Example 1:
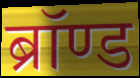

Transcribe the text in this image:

ब्रॉण्ड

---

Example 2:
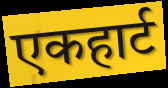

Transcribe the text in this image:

एकहार्ट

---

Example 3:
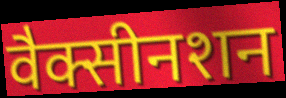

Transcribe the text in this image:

वैक्सीनशन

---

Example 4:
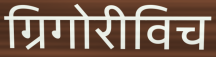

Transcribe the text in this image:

ग्रिगोरीविच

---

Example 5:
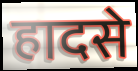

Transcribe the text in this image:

हादसे